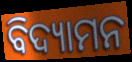
ବିଦ୍ୟାମନ